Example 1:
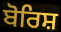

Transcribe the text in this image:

ਬੋਰਿਸ਼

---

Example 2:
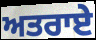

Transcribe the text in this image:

ਅਤਰਾਏ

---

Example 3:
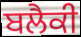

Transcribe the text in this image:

ਬਲੈਕੀ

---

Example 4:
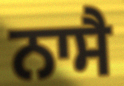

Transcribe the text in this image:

ਨਾਸੈ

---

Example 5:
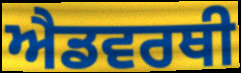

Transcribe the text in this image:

ਐਡਵਰਥੀ